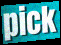
pick